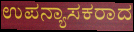
ಉಪನ್ಯಾಸಕರಾದ